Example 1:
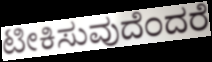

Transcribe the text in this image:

ಟೀಕಿಸುವುದೆಂದರೆ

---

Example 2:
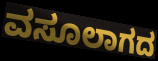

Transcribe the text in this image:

ವಸೂಲಾಗದ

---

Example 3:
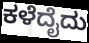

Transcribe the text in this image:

ಕಳೆದೈದು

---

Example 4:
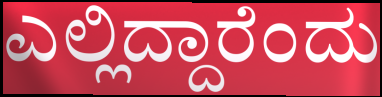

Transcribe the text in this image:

ಎಲ್ಲಿದ್ದಾರೆಂದು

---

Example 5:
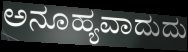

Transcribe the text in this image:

ಅನೂಹ್ಯವಾದುದು